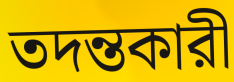
তদন্তকারী